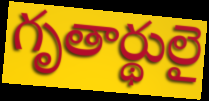
గృతార్థులై